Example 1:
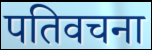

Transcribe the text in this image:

पतिवचना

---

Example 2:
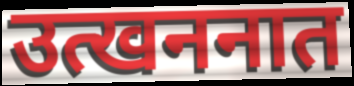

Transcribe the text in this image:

उत्खननात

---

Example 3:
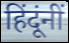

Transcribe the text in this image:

हिंदूंनीं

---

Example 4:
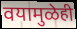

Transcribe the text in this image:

वयामुळेही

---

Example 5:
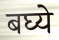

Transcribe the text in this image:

बघ्ये